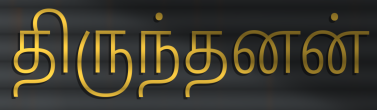
திருந்தனன்